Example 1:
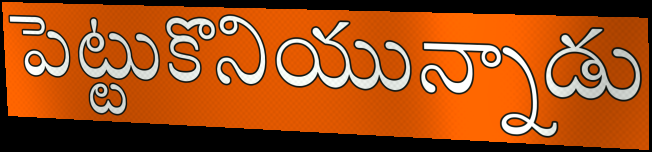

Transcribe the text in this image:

పెట్టుకొనియున్నాడు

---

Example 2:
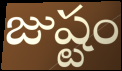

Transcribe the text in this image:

జుష్టం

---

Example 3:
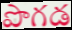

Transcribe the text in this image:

పొగడ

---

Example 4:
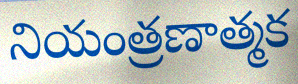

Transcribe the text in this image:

నియంత్రణాత్మక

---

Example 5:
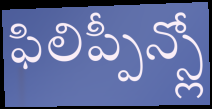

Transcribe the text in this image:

ఫిలిప్పీన్స్లో